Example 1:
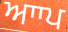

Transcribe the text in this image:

ਆਾਪ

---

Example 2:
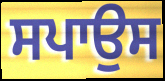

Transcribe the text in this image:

ਸਪਾਉਸ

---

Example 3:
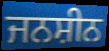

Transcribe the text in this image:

ਜਨਸ਼ੀਨ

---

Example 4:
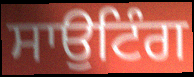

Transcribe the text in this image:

ਸਾਉਟਿੰਗ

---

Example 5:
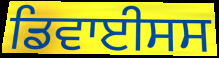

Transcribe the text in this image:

ਡਿਵਾਈਸਸ